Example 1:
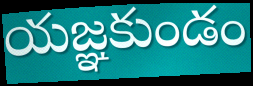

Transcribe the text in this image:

యజ్ఞకుండం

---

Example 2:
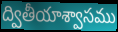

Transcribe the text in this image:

ద్వితీయాశ్వాసము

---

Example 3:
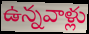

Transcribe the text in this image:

ఉన్నవాళ్లు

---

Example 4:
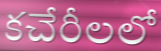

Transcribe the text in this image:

కచేరీలలో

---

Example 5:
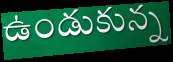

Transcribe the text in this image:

ఉండుకున్న